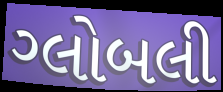
ગ્લોબલી